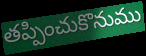
తప్పించుకొనుము